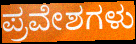
ಪ್ರವೇಶಗಳು